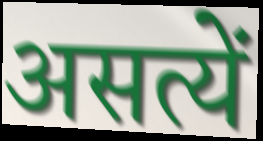
असत्यें